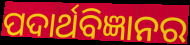
ପଦାର୍ଥବିଜ୍ଞାନର